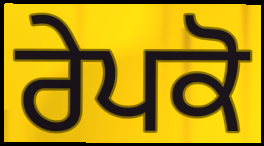
ਰੇਪਕੋ